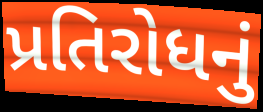
પ્રતિરોધનું